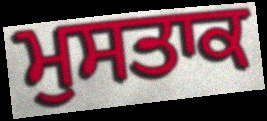
ਮੁਸਤਾਕ